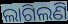
ଲାଗିଲଣି